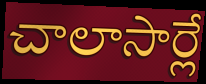
చాలాసార్లే